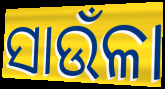
ସାଉଁଳା